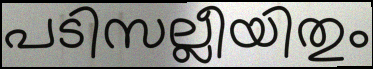
പടിസല്ലീയിതും